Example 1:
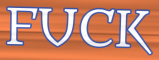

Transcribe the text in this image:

FUCK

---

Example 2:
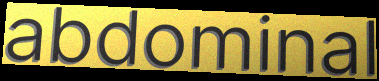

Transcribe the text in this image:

abdominal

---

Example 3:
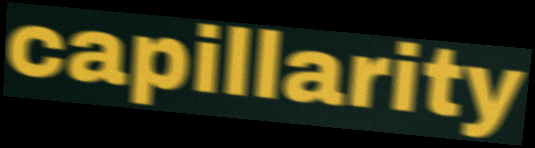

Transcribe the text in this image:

capillarity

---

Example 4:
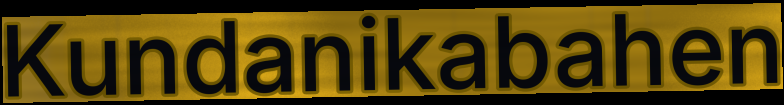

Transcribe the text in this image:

Kundanikabahen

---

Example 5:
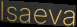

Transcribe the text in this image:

Isaeva